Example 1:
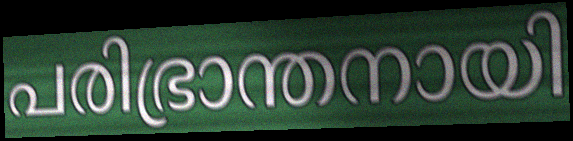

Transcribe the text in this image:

പരിഭ്രാന്തനായി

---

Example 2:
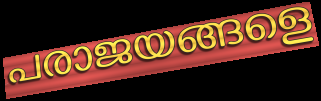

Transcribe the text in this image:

പരാജയങ്ങളെ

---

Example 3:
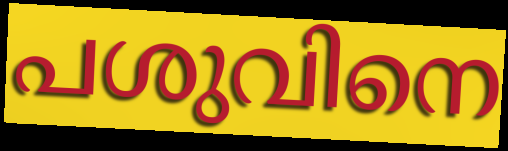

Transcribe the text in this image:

പശുവിനെ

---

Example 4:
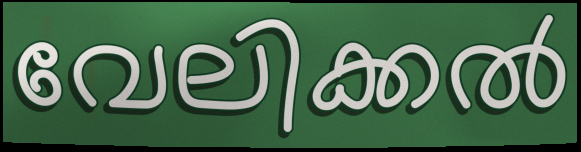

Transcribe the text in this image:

വേലിക്കൽ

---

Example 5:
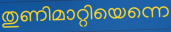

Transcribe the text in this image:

തുണിമാറ്റിയെന്നെ